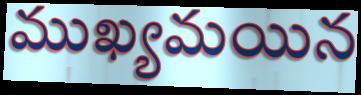
ముఖ్యమయిన